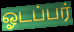
ஓடப்பர்